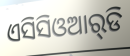
ଏସିସିଓଆର୍‌ଡି